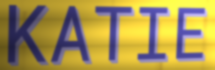
KATIE